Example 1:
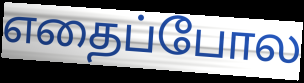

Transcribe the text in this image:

எதைப்போல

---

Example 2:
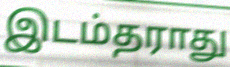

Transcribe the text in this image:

இடம்தராது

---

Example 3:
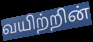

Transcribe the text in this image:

வயிற்றின்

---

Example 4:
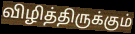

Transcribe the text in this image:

விழித்திருக்கும்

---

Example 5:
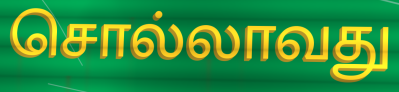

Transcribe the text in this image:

சொல்லாவது